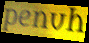
penuh